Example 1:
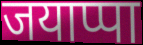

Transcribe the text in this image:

जयाप्पा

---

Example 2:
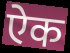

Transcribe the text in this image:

ऐक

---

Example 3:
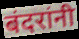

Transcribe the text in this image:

बंदरांनी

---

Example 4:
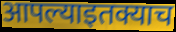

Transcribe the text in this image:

आपल्याइतक्याच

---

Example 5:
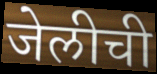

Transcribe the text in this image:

जेलीची